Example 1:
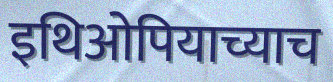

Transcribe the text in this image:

इथिओपियाच्याच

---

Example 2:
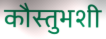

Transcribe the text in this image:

कौस्तुभशी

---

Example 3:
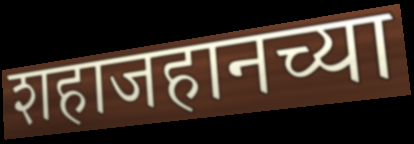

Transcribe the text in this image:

शहाजहानच्या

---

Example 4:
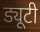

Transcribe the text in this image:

ड्यूटी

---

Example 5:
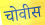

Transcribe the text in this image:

चोवीस